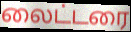
லைட்டரை